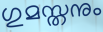
ഗുമസ്തനും